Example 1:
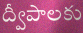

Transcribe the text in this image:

ద్వీపాలకు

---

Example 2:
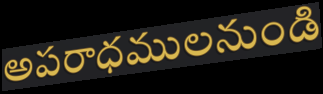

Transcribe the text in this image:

అపరాధములనుండి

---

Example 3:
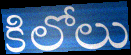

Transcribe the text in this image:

కిలోలు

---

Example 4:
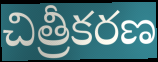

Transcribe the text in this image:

చిత్రీకరణ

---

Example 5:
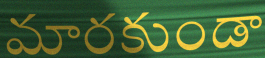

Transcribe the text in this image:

మారకుండా